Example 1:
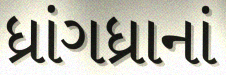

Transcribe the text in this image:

ધ્રાંગધ્રાનાં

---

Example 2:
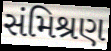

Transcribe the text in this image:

સંમિશ્રણ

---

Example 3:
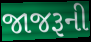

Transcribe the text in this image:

જાજરૂની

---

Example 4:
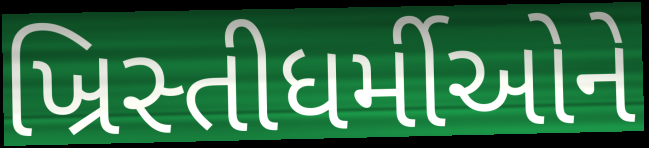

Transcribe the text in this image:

ખ્રિસ્તીધર્મીઓને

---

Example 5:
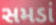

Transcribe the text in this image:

સમડાં